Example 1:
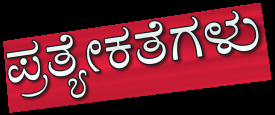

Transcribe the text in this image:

ಪ್ರತ್ಯೇಕತೆಗಳು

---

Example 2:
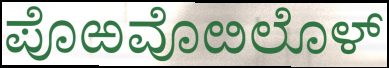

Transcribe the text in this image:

ಪೊಱವೊೞಲೊಳ್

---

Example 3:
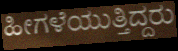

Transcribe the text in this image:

ಹೀಗಳೆಯುತ್ತಿದ್ದರು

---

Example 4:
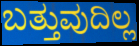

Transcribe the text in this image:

ಬತ್ತುವುದಿಲ್ಲ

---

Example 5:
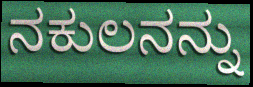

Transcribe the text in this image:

ನಕುಲನನ್ನು